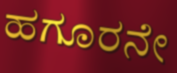
ಹಗೂರನೇ